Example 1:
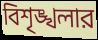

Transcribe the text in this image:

বিশৃঙ্খলার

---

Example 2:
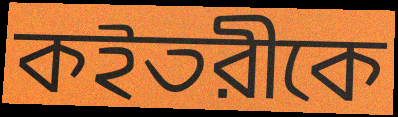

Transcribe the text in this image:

কইতরীকে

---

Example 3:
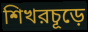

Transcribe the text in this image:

শিখরচূড়ে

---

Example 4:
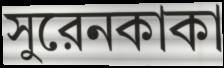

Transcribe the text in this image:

সুরেনকাকা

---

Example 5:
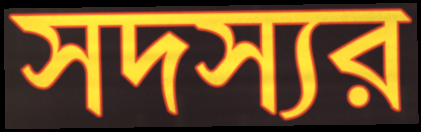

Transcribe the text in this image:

সদস্যর